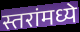
स्तरांमध्ये